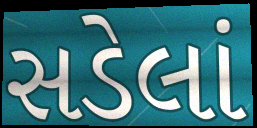
સડેલાં